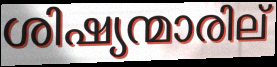
ശിഷ്യന്മാരില്